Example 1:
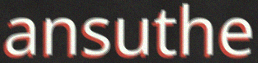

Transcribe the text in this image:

ansuthe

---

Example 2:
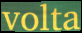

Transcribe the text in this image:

volta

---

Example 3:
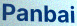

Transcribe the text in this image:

Panbai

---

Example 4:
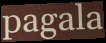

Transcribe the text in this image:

pagala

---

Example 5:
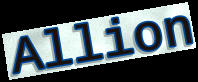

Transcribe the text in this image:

Allion